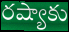
రష్యాకు